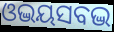
ଓଦ୍ଭୟସବଦ୍ଭ